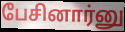
பேசினார்னு